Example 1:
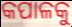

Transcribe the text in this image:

କପାଳକୁ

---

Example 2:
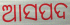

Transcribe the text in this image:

ଆସପଦ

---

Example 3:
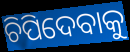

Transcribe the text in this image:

ଚିପିଦେବାକୁ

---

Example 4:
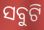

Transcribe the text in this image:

ସବୁଟି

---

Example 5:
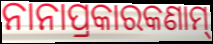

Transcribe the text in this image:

ନାନାପ୍ରକାରକଣାମ୍